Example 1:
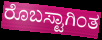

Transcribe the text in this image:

ರೊಬಸ್ಟಾಗಿಂತ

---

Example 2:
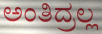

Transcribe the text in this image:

ಅಂತಿದ್ರಲ್ಲ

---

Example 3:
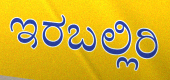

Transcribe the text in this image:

ಇರಬಲ್ಲಿರಿ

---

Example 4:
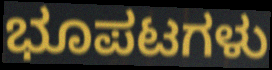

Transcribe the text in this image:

ಭೂಪಟಗಳು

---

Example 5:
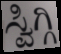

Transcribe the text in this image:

ಸ್ವಿಗ್ಗಿ